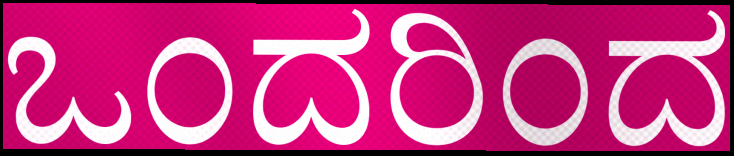
ಒಂದರಿಂದ